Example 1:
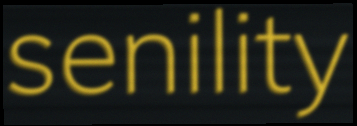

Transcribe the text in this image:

senility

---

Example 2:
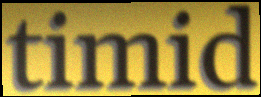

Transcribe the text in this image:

timid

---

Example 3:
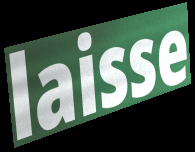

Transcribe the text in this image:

laisse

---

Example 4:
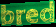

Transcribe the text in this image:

bred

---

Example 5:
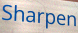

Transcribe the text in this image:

Sharpen